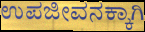
ಉಪಜೀವನಕ್ಕಾಗಿ